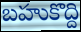
బహుకొద్ది